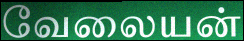
வேலையன்